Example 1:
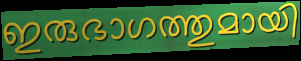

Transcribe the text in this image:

ഇരുഭാഗത്തുമായി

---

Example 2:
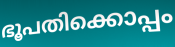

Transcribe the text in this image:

ഭൂപതിക്കൊപ്പം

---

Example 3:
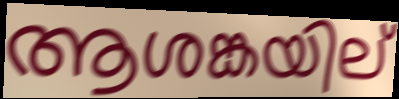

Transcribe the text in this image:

ആശങ്കയില്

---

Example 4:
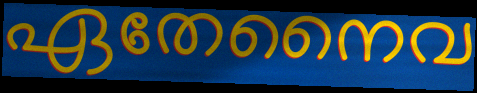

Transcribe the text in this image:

ഏതേനൈവ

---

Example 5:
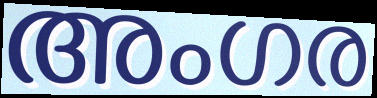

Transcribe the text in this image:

അംഗര